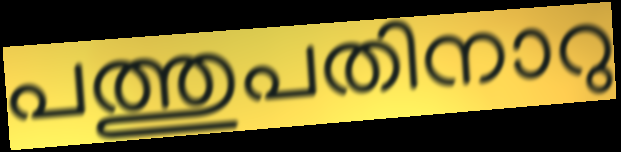
പത്തുപതിനാറു